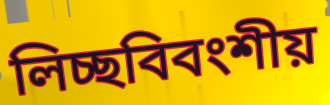
লিচ্ছবিবংশীয়